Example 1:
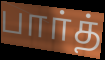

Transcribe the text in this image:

பார்த்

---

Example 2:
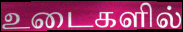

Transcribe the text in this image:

உடைகளில்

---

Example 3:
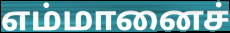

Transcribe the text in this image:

எம்மானைச்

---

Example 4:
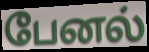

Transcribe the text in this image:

பேனல்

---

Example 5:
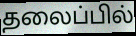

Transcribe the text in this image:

தலைப்பில்